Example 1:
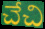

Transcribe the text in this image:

చేచి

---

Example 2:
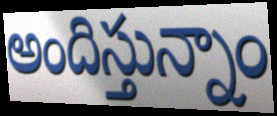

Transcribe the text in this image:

అందిస్తున్నాం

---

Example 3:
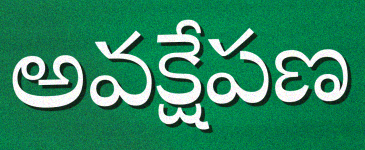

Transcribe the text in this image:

అవక్షేపణ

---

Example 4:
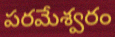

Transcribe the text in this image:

పరమేశ్వరం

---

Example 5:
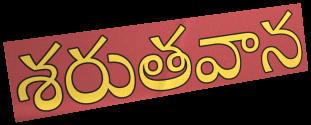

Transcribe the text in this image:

శరుతవాన